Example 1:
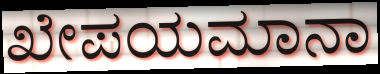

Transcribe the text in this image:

ಖೇಪಯಮಾನಾ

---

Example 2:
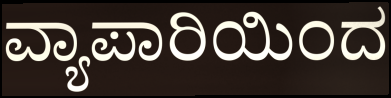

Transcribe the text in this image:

ವ್ಯಾಪಾರಿಯಿಂದ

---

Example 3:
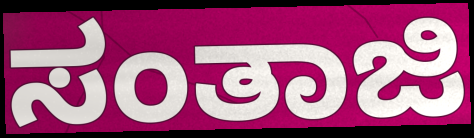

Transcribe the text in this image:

ಸಂತಾಜಿ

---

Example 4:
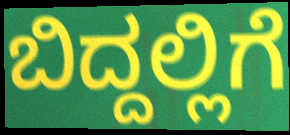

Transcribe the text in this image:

ಬಿದ್ದಲ್ಲಿಗೆ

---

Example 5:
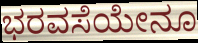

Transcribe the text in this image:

ಭರವಸೆಯೇನೂ